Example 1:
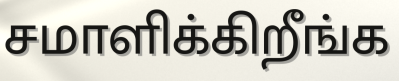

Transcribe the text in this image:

சமாளிக்கிறீங்க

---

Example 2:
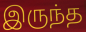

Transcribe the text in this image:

இருந்த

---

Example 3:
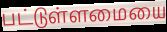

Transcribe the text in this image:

பட்டுள்ளமையை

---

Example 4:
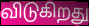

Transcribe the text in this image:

விடுகிறது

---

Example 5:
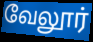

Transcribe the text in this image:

வேலூர்